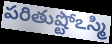
పరితుష్టోఽస్మి